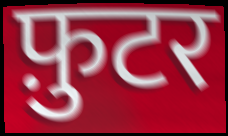
फ़ुटर